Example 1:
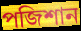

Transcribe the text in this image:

পজিশান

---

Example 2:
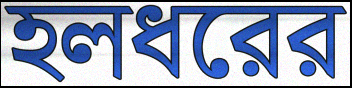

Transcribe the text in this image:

হলধরের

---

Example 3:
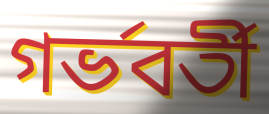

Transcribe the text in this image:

গর্ভবর্তী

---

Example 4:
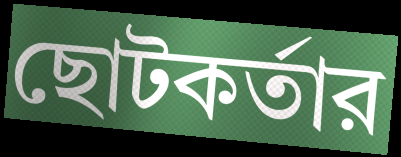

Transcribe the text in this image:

ছোটকর্তার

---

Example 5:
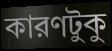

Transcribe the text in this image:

কারণটুকু